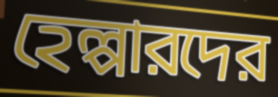
হেল্পারদের